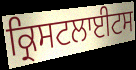
ਕ੍ਰਿਸਟਲਾਈਟਸ